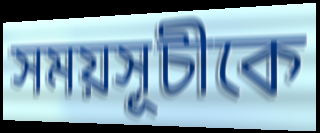
সময়সূচীকে